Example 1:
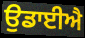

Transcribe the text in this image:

ਉਡਾਈਐ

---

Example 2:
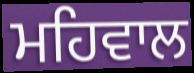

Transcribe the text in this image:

ਮਹਿਵਾਲ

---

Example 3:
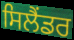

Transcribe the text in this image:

ਸਿਲੈਂਡਰ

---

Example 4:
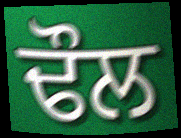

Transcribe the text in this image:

ਢੌਲ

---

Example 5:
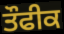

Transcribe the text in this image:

ਤੌਫੀਕ